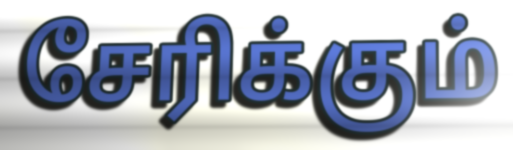
சேரிக்கும்